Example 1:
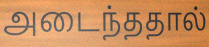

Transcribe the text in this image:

அடைந்ததால்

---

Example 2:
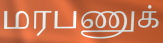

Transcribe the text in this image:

மரபணுக்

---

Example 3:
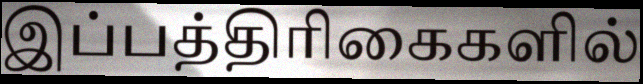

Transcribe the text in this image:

இப்பத்திரிகைகளில்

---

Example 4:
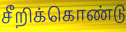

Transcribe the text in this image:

சீறிக்கொண்டு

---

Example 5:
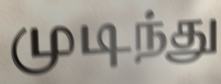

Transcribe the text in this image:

முடிந்து